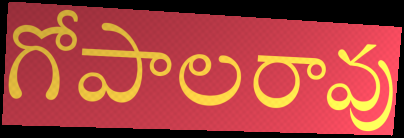
గోపాలరావు